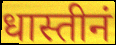
धास्तीनं